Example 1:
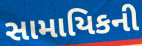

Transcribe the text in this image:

સામાયિકની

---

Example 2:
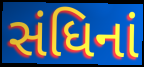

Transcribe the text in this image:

સંધિનાં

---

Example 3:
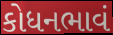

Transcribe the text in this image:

કોધનભાવં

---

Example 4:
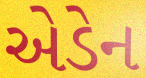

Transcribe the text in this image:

એડેન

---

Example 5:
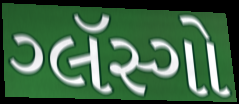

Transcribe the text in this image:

ગ્લૅસ્ગો